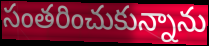
సంతరించుకున్నాను